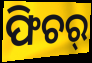
ଫିଚର୍